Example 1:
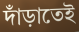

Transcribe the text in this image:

দাঁড়াতেই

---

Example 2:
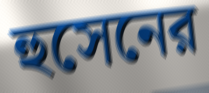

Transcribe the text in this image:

হুসেনের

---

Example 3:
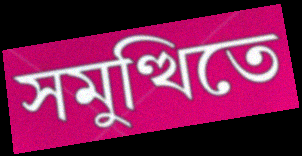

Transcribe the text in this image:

সমুত্থিতে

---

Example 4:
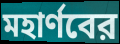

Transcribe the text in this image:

মহার্ণবের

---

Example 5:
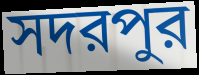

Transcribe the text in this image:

সদরপুর